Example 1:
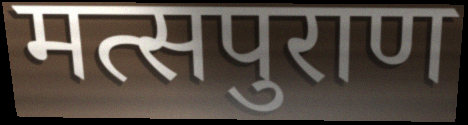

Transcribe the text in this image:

मत्सपुराण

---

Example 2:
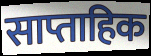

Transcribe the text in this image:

साप्ताहिक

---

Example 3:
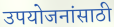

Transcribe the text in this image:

उपयोजनांसाठी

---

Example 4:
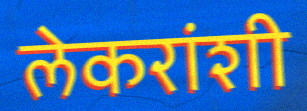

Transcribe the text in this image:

लेकरांशी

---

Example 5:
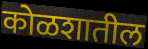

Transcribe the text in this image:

कोळशातील